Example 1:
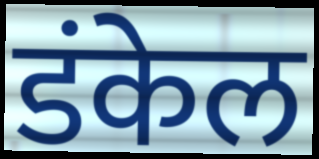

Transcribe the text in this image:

डंकेल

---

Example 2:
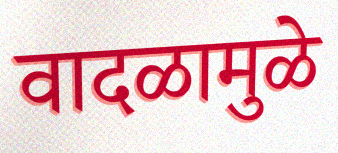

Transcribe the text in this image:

वादळामुळे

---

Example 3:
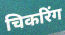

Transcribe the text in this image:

चिकरिंग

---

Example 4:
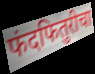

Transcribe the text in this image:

फंदफितुरीचा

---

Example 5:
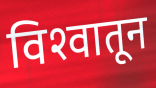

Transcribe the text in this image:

विश्वातून